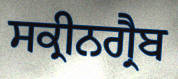
ਸਕ੍ਰੀਨਗ੍ਰੈਬ